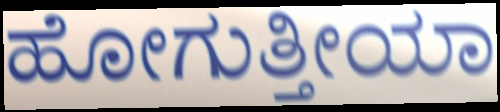
ಹೋಗುತ್ತೀಯಾ